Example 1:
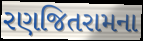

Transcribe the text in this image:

રણજિતરામના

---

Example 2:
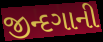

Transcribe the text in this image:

જીન્દગાની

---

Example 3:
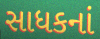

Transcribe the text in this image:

સાધકનાં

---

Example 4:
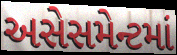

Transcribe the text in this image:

અસેસમેન્ટમાં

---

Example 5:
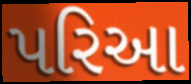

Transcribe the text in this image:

પરિઆ